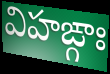
విహఙ్గాః